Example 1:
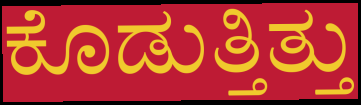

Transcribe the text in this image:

ಕೊಡುತ್ತಿತ್ತು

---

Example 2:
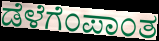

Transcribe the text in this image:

ಡೆಳೆಗೆಂಪಾಂತ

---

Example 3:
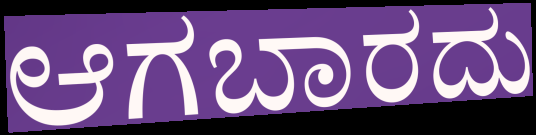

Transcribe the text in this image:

ಆಗಬಾರದು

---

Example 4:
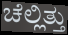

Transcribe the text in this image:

ಚೆಲ್ಲಿತ್ತು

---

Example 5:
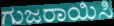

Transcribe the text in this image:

ಗುಜರಾಯಿಸಿ